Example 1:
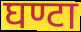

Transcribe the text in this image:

घण्टा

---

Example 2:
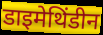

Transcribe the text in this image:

डाइमेथिंडीन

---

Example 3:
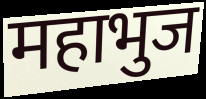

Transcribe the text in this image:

महाभुज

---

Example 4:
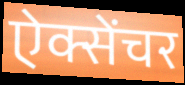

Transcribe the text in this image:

ऐक्सेंचर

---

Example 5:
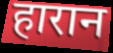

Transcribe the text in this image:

हारान